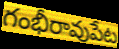
గంభీరావుపేట